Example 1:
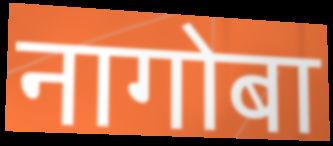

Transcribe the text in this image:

नागोबा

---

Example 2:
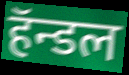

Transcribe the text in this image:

हॅन्डल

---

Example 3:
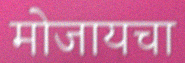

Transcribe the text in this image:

मोजायचा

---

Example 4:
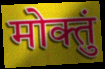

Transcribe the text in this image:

मोक्तुं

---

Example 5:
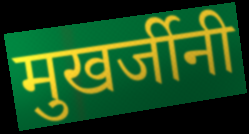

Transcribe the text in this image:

मुखर्जीनी